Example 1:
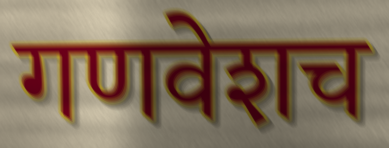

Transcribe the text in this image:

गणवेशच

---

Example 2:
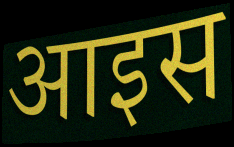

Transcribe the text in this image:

आइस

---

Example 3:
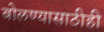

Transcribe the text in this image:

बोलण्यासाठीही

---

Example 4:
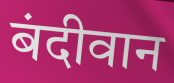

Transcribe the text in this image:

बंदीवान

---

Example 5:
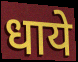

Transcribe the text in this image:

धाये